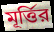
মূর্ত্তির